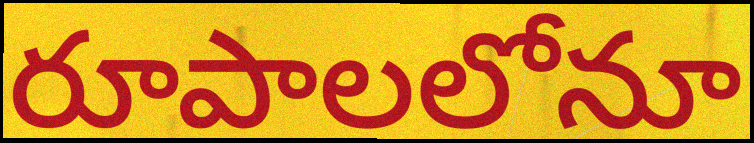
రూపాలలోనూ